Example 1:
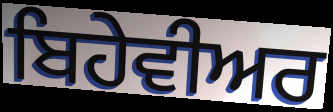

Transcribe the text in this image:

ਬਿਹੇਵੀਅਰ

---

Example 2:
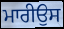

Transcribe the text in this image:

ਮਾਰੀਉਸ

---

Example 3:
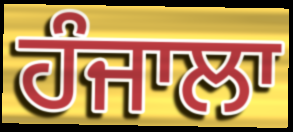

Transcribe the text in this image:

ਹੰਜਾਲਾ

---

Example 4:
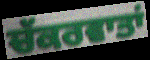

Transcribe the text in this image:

ਚੱਕਰਵਾਤਾਂ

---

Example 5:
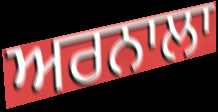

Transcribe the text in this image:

ਅਰਨਾਲਾ